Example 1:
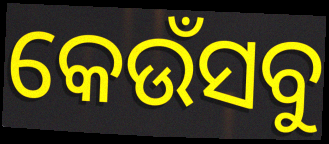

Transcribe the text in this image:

କେଉଁସବୁ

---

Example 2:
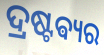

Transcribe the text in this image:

ଦ୍ରଷ୍ଟଵ୍ୟର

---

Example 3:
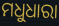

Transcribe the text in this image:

ମଧୁଧାରା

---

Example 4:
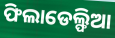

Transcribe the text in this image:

ଫିଲାଡେଲ୍ଫିଆ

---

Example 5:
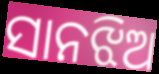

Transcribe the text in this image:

ସାନଝିଅ